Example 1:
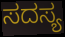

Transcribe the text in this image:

ಸದಸ್ಯ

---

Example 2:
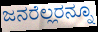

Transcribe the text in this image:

ಜನರೆಲ್ಲರನ್ನೂ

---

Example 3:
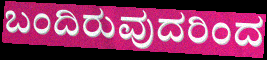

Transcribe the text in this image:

ಬಂದಿರುವುದರಿಂದ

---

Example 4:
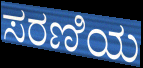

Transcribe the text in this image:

ಸರಣಿಯ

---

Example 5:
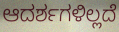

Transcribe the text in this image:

ಆದರ್ಶಗಳಿಲ್ಲದೆ